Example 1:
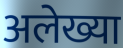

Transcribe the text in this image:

अलेख्या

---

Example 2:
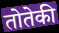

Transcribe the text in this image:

तोतेकी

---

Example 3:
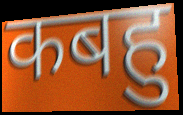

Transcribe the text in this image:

कबहु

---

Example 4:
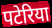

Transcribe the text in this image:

पटेरिया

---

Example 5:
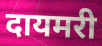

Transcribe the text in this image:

दायमरी